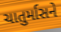
ચાતુર્માસને